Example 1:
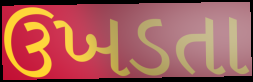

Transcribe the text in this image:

ઉખડતા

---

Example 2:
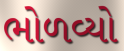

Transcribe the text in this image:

ભોળવ્યો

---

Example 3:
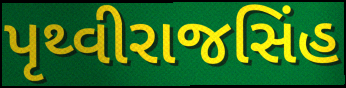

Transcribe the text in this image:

પૃથ્વીરાજસિંહ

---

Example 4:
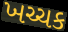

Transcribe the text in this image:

ખચ્ચક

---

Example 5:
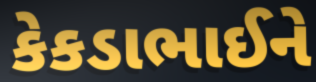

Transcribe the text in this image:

કેકડાભાઈને